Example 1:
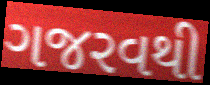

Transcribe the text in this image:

ગજરવથી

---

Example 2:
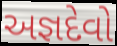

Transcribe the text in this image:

અજ્ઞદેવો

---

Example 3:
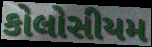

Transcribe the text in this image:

કોલોસીયમ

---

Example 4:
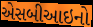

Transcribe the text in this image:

એસબીઆઇનો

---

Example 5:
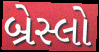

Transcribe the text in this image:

બ્રેસ્લો